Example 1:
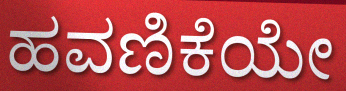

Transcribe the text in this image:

ಹವಣಿಕೆಯೇ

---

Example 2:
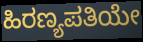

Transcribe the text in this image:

ಹಿರಣ್ಯಪತಿಯೇ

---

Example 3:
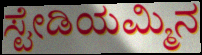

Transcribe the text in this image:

ಸ್ಟೇಡಿಯಮ್ಮಿನ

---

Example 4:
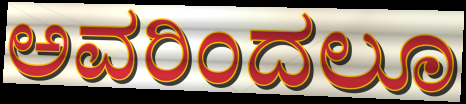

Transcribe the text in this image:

ಅವರಿಂದಲೂ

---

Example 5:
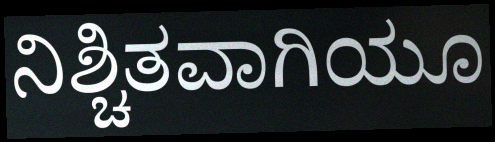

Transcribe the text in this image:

ನಿಶ್ಚಿತವಾಗಿಯೂ